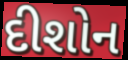
દીશોન